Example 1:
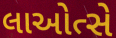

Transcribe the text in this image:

લાઓત્સે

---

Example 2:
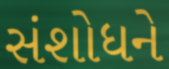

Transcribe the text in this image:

સંશોધને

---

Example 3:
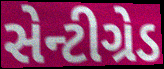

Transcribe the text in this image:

સેન્ટીગ્રેડ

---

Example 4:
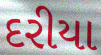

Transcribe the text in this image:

દરીયા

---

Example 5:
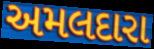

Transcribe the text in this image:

અમલદારા